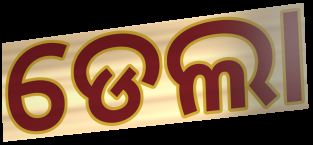
ଡେଲା